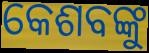
କେଶବଙ୍କୁ